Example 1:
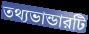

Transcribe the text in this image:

তথ্যভান্ডারটি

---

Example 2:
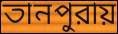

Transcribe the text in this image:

তানপুরায়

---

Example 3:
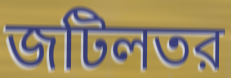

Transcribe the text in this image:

জটিলতর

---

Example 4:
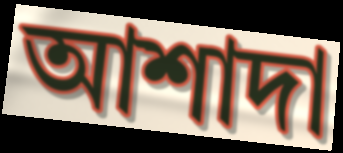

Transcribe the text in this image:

আশাদা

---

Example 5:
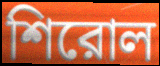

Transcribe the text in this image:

শিরোল